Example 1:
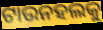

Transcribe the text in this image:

ଟାଉନହଲକୁ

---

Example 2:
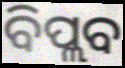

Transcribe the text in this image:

ବିପ୍ଲବ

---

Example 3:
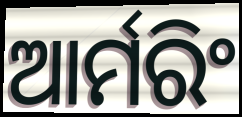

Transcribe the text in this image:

ଆର୍ମରିଂ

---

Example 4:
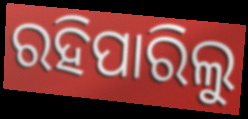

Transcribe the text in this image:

ରହିପାରିଲୁ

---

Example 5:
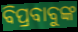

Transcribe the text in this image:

ବିପ୍ରବାବୁଙ୍କ